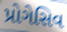
પ્રોગેસિવ